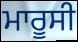
ਮਾਰੂਸੀ